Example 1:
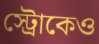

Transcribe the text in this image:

স্ট্রোকেও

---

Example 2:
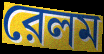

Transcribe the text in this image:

রেলম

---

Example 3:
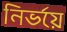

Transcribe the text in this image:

নির্ভয়ে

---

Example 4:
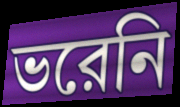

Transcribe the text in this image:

ভরেনি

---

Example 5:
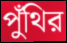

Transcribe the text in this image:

পুঁথির